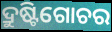
ଦ୍ରୁଷ୍ଟିଗୋଚର